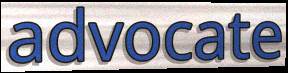
advocate